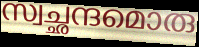
സ്വച്ഛന്ദമൊരു